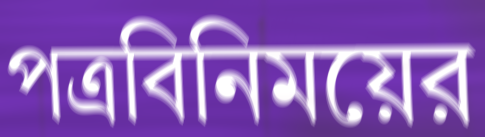
পত্রবিনিময়ের